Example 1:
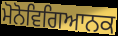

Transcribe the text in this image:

ਮੋਨੋਵਿਗਿਆਨਕ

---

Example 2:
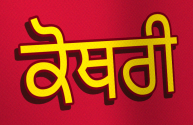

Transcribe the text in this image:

ਕੋਥਰੀ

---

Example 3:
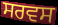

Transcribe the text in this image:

ਸਰਵਸ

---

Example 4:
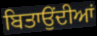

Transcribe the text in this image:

ਬਿਤਾਉਂਦੀਆਂ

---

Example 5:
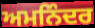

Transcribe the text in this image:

ਅਮਨਿੰਦਰ